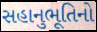
સહાનુભૂતિનો